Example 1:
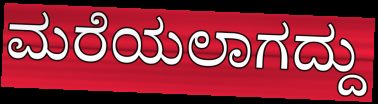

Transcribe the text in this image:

ಮರೆಯಲಾಗದ್ದು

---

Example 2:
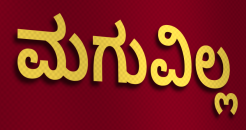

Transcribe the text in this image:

ಮಗುವಿಲ್ಲ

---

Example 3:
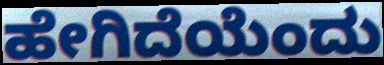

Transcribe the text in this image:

ಹೇಗಿದೆಯೆಂದು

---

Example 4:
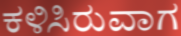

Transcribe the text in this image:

ಕಳಿಸಿರುವಾಗ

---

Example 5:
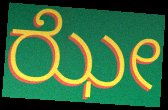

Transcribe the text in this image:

ಝೇ